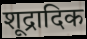
शूद्रादिक